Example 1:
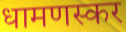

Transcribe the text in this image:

धामणस्कर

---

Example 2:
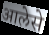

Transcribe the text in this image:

आलेसे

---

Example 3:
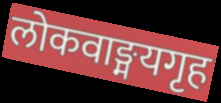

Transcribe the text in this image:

लोकवाङ्मयगृह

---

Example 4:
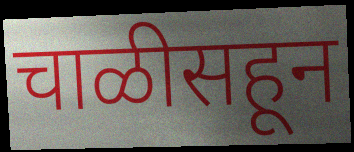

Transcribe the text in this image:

चाळीसहून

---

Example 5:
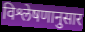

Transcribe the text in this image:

विश्लेषणानुसार